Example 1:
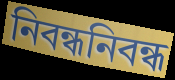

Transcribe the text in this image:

নিবন্ধনিবন্ধ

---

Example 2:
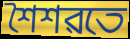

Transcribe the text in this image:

শৈশৱতে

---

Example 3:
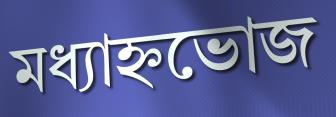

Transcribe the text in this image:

মধ্যাহ্নভোজ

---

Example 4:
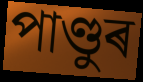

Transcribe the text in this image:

পাণ্ডুৰ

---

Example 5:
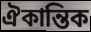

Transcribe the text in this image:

ঐকান্তিক